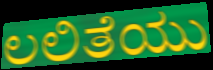
ಲಲಿತೆಯು